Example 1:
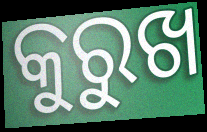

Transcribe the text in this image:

କୁରୁଖ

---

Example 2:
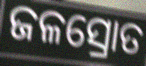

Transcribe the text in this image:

ଜଳସ୍ରୋତ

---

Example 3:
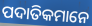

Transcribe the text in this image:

ପଦାତିକମାନେ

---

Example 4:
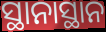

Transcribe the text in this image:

ସ୍ଥାନାସ୍ଥାନ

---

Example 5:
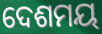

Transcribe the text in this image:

ଦେଶମୟ